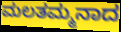
ಮಲತಮ್ಮನಾದ